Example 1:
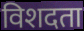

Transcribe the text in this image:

विशदता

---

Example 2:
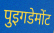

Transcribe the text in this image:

पुइगडेमोंट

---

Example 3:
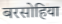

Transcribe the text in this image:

बरसोहिया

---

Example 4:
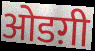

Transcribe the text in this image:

ओडग़ी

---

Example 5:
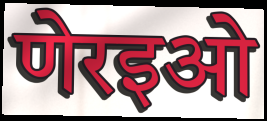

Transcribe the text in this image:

णेरइओ